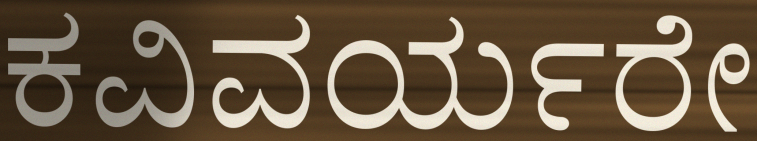
ಕವಿವರ್ಯರೇ